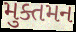
મુક્તમન